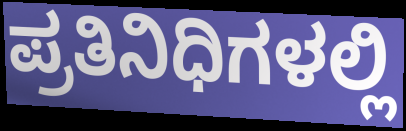
ಪ್ರತಿನಿಧಿಗಳಲ್ಲಿ